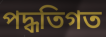
পদ্ধতিগত